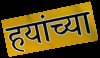
हयांच्या